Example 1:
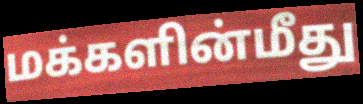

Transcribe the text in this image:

மக்களின்மீது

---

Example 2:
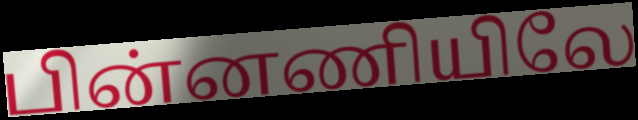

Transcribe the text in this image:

பின்னணியிலே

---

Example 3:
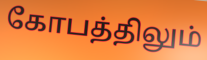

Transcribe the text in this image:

கோபத்திலும்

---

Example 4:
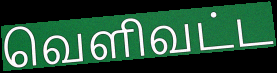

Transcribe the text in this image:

வெளிவட்ட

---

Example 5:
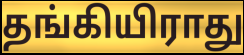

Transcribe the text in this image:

தங்கியிராது